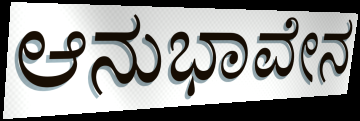
ಆನುಭಾವೇನ